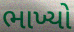
ભાખ્યો